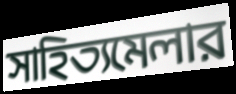
সাহিত্যমেলার